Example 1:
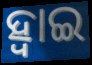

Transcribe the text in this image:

ହ୍ଵାଇ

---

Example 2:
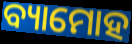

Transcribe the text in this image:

ବ୍ୟାମୋହ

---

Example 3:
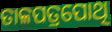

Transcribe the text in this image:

ତାଳପତ୍ରପୋଥି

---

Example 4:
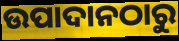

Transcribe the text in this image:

ଉପାଦାନଠାରୁ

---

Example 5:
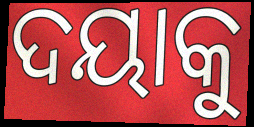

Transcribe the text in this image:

ଦୟାକୁ